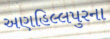
અણહિલ્લપુરના